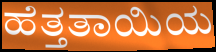
ಹೆತ್ತತಾಯಿಯ